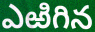
ఎఱిగిన